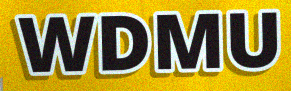
WDMU